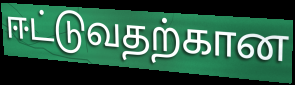
ஈட்டுவதற்கான